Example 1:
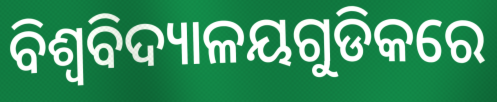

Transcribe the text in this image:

ବିଶ୍ୱବିଦ୍ୟାଳୟଗୁଡିକରେ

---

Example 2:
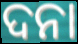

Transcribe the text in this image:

ଦନା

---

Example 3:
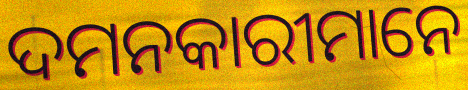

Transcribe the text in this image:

ଦମନକାରୀମାନେ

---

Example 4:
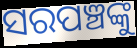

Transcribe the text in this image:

ସରପଞ୍ଚଙ୍କୁ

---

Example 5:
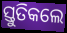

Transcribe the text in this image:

ସ୍ତୁତିକଲେ